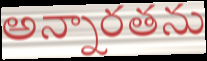
అన్నారతను